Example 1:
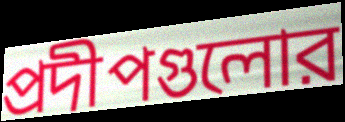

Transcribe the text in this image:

প্রদীপগুলোর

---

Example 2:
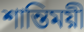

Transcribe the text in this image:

শান্তিময়ী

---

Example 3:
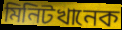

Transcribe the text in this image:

মিনিটখানেক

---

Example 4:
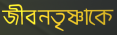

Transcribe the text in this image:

জীবনতৃষ্ণাকে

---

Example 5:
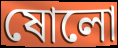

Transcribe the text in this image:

ষোলো